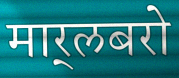
मार्लबरो